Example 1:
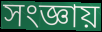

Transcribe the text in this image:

সংজ্ঞায়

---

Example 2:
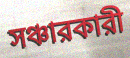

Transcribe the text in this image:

সঞ্চারকারী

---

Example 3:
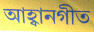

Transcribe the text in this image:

আহ্বানগীত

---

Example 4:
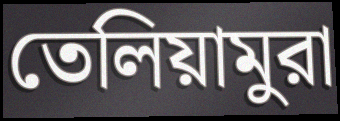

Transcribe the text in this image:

তেলিয়ামুরা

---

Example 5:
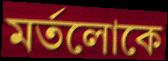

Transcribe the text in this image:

মর্তলোকে